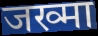
जख्मा